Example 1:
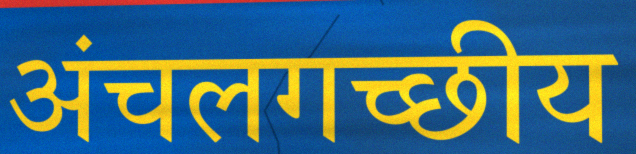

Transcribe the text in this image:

अंचलगच्छीय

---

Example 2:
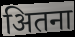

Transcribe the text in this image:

अितना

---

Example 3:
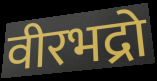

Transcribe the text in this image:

वीरभद्रो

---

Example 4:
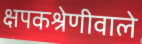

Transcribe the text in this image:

क्षपकश्रेणीवाले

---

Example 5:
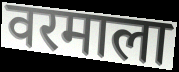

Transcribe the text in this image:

वरमाला